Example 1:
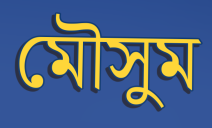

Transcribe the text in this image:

মৌসুম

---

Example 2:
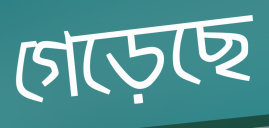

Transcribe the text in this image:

গেড়েছে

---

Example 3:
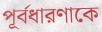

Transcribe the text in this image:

পূর্বধারণাকে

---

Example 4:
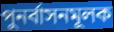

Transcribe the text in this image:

পুনর্বাসনমূলক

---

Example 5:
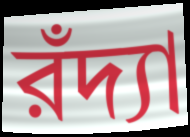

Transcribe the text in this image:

রঁদ্যা